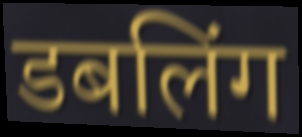
डबलिंग